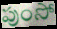
పుంసో